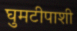
घुमटीपाशी